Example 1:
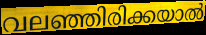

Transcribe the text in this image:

വലഞ്ഞിരിക്കയാൽ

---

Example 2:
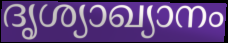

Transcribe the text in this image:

ദൃശ്യാഖ്യാനം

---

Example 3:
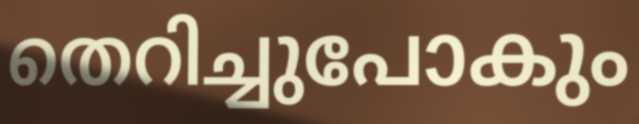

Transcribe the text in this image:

തെറിച്ചുപോകും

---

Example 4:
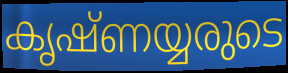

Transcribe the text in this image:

കൃഷ്ണയ്യരുടെ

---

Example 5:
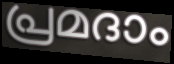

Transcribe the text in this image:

പ്രമദാം